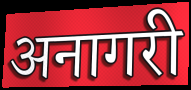
अनागरी